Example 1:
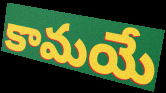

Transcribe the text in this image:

కామయే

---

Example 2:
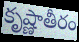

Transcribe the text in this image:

కృష్ణాతీరం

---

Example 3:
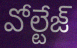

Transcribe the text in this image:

వోల్టేజ్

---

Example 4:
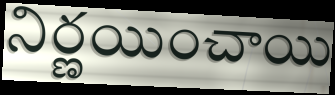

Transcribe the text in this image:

నిర్ణయించాయి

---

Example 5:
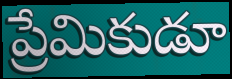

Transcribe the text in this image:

ప్రేమికుడూ